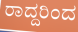
ರಾದ್ದರಿಂದ